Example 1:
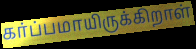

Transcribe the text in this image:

கர்ப்பமாயிருக்கிறாள்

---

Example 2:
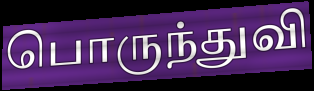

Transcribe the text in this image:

பொருந்துவி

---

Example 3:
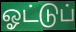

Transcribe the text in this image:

ஓட்டுப்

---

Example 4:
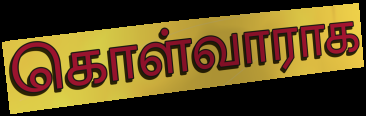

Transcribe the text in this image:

கொள்வாராக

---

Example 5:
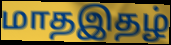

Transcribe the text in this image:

மாதஇதழ்